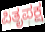
ಪಿತೃಪಕ್ಷ